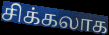
சிக்கலாக